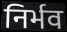
निर्भव